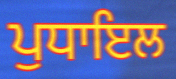
ਪੁਧਾਇਲ